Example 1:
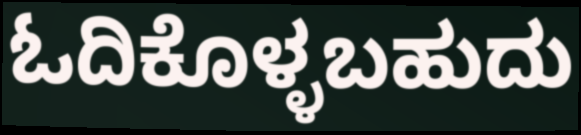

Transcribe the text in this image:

ಓದಿಕೊಳ್ಳಬಹುದು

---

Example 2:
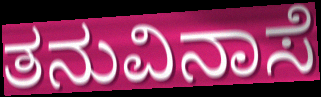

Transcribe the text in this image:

ತನುವಿನಾಸೆ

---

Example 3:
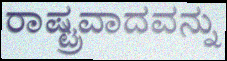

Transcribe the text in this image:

ರಾಷ್ಟ್ರವಾದವನ್ನು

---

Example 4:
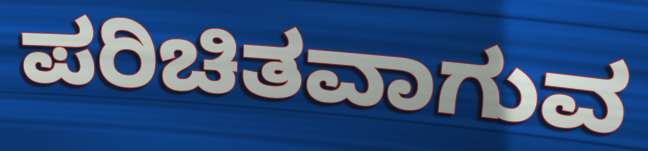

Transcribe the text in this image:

ಪರಿಚಿತವಾಗುವ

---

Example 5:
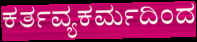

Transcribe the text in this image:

ಕರ್ತವ್ಯಕರ್ಮದಿಂದ